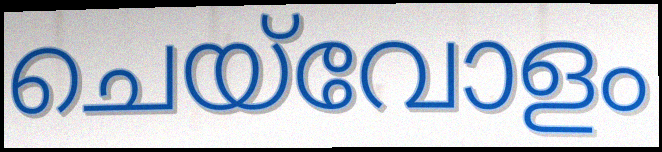
ചെയ്‌വോളം